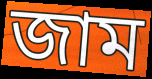
জাম